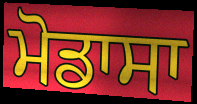
ਮੋਡਾਸਾ